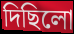
দিছিলো